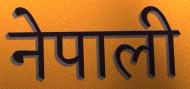
नेपाली